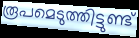
രൂപമെടുത്തിട്ടുണ്ട്